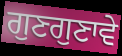
ਗੁਣਗੁਣਾਵੇ